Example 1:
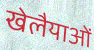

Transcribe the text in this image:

खेलैयाओं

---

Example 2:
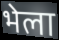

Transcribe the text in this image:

भेला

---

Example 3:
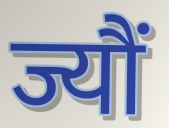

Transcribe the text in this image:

ज्यौं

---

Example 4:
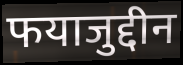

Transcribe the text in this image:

फयाजुद्दीन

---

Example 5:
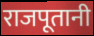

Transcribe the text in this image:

राजपूतानी